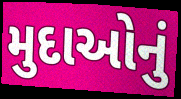
મુદાઓનું